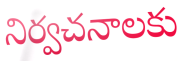
నిర్వచనాలకు